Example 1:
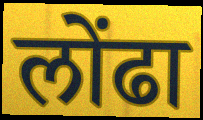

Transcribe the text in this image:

लोंढा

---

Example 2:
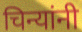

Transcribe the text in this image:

चिन्यांनी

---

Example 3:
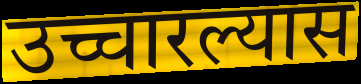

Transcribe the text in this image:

उच्चारल्यास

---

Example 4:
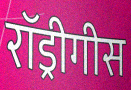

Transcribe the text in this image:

रॉड्रीगीस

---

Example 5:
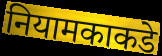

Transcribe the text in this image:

नियामकाकडे